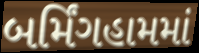
બર્મિંગહામમાં